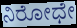
ನಿರೋಧೇ